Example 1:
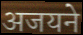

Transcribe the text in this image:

अजयने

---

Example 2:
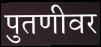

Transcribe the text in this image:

पुतणीवर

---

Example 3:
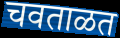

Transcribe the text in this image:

चवताळत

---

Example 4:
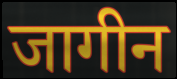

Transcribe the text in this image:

जागीन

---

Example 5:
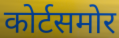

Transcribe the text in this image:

कोर्टसमोर